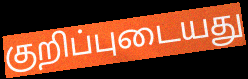
குறிப்புடையது